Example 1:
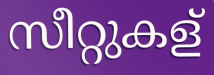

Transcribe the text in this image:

സീറ്റുകള്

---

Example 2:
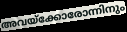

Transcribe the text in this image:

അവയ്ക്കോരോന്നിനും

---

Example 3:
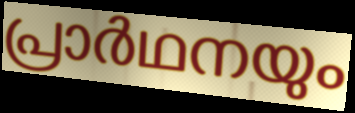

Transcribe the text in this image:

പ്രാർഥനയും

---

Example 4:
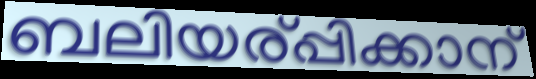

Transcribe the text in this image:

ബലിയര്പ്പിക്കാന്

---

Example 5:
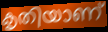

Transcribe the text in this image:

കൃതിയാണ്